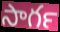
సాగర్‍